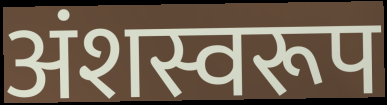
अंशस्वरूप